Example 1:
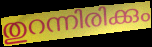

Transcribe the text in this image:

തുറന്നിരിക്കും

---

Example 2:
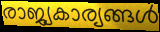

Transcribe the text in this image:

രാജ്യകാര്യങ്ങൾ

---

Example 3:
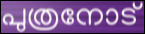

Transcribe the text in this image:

പുത്രനോട്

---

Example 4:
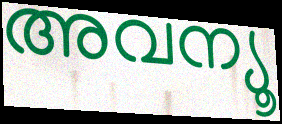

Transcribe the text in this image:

അവന്യൂ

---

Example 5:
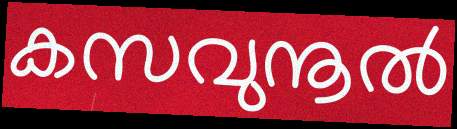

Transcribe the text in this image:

കസവുനൂൽ